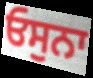
ਓਸੁਨਾ